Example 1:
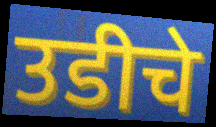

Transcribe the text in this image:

उडीचे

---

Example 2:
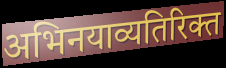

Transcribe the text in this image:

अभिनयाव्यतिरिक्त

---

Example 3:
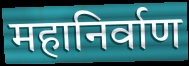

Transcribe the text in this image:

महानिर्वाण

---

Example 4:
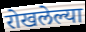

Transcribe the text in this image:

रोखलेल्या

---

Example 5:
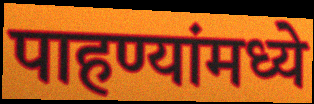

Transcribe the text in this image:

पाहण्यांमध्ये